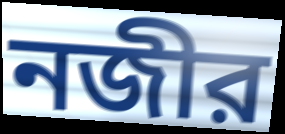
নজীর